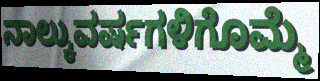
ನಾಲ್ಕುವರ್ಷಗಳಿಗೊಮ್ಮೆ